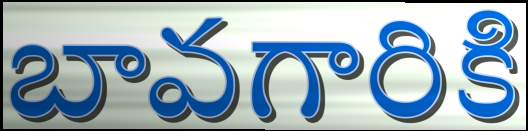
బావగారికి